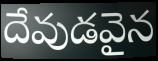
దేవుడవైన